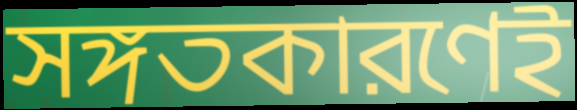
সঙ্গতকারণেই